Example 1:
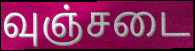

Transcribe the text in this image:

வுஞ்சடை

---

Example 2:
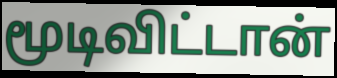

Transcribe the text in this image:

மூடிவிட்டான்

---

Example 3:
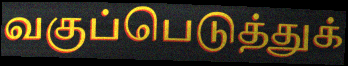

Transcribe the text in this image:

வகுப்பெடுத்துக்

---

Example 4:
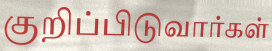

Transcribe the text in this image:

குறிப்பிடுவார்கள்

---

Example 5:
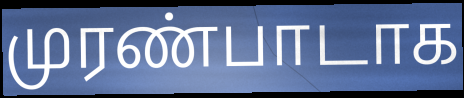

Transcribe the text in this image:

முரண்பாடாக